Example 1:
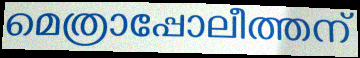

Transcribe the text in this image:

മെത്രാപ്പോലീത്തന്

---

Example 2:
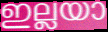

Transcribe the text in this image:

ഇല്ലയാ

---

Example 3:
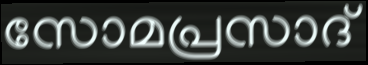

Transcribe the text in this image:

സോമപ്രസാദ്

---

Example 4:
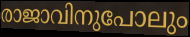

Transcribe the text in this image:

രാജാവിനുപോലും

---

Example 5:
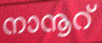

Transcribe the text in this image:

നാനൂറ്